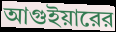
আগুইয়ারের